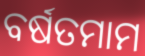
ବର୍ଷତମାମ